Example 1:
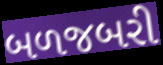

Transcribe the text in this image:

બળજબરી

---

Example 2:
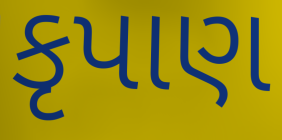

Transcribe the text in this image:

કૃપાણ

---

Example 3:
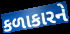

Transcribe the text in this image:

કળાકારને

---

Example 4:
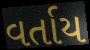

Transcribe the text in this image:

વર્તાય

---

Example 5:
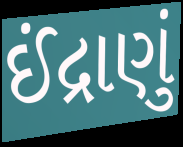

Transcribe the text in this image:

ઈંદ્રાણું